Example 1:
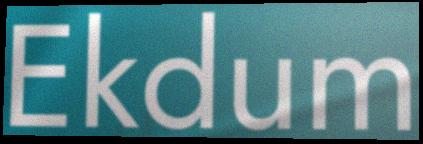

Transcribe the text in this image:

Ekdum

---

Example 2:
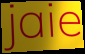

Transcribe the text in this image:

jaie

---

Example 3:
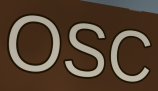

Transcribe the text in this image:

OSC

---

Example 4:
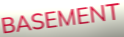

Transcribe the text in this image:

BASEMENT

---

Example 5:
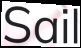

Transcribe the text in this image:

Sail